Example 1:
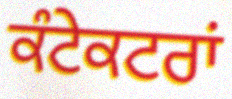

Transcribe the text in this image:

ਕੰਟੇਕਟਰਾਂ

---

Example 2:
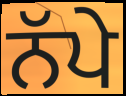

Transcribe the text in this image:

ਨੱਪੇ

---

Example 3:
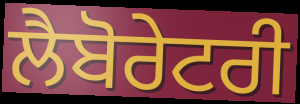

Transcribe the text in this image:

ਲੈਬੋਰੇਟਰੀ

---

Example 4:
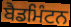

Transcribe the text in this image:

ਬੈਡਮਿੰਟਨ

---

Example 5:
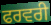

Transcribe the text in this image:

ਫਰਵਰੀ